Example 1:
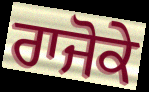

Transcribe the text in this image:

ਰਾਜੋਕੇ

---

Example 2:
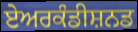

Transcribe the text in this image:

ਏਅਰਕੰਡੀਸ਼ਨਡ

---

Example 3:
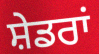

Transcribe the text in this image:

ਸ਼ੇਡਰਾਂ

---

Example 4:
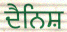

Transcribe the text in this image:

ਦੈਨਿਸ਼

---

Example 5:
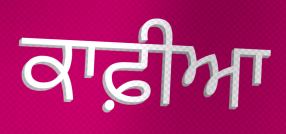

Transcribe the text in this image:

ਕਾਫ਼ੀਆ